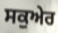
ਸਕੁਅੇਰ